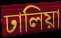
ঢালিয়া